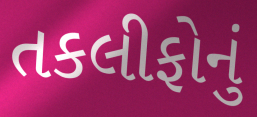
તકલીફોનું